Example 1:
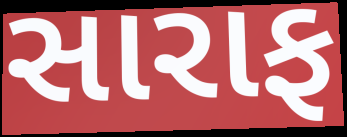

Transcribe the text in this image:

સારાફ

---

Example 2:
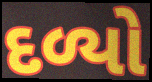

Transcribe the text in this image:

દળ્યો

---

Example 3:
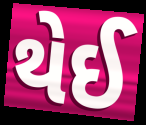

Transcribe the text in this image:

થેઈ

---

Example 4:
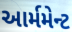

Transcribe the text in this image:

આર્મમેન્ટ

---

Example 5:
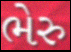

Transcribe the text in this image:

ભેરુ